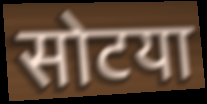
सोटया